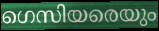
ഗെസിയരെയും